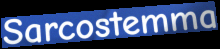
Sarcostemma